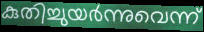
കുതിച്ചുയർന്നുവെന്ന്